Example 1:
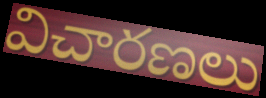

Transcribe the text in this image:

విచారణలు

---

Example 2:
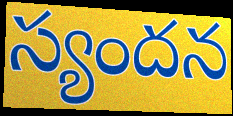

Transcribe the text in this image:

స్యందన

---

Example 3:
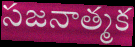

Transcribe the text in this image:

సజనాత్మక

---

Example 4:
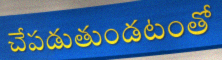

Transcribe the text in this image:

చేపడుతుండటంతో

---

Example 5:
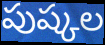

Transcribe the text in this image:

పుష్కల